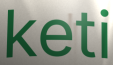
keti